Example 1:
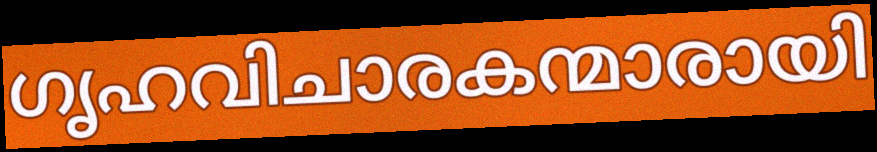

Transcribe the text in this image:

ഗൃഹവിചാരകന്മാരായി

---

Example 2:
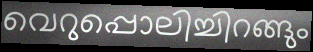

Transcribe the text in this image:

വെറുപ്പൊലിച്ചിറങ്ങും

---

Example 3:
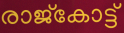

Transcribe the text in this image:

രാജ്കോട്ട്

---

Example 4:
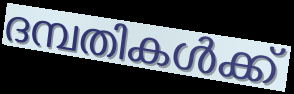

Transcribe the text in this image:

ദമ്പതികൾക്ക്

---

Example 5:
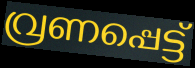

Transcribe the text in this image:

വ്രണപ്പെട്ട്